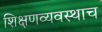
शिक्षणव्यवस्थाच